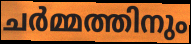
ചർമ്മത്തിനും